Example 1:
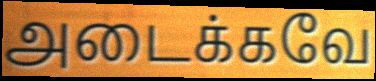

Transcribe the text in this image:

அடைக்கவே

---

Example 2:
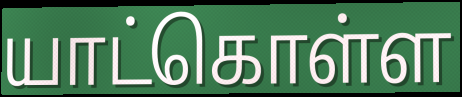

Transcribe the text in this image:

யாட்கொள்ள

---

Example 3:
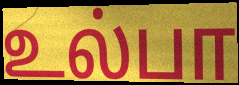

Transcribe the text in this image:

உல்பா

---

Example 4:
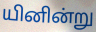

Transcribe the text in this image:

யினின்று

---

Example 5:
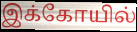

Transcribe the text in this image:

இக்கோயில்